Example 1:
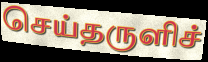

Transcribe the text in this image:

செய்தருளிச்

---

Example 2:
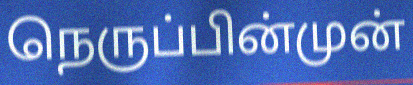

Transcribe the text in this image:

நெருப்பின்முன்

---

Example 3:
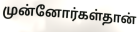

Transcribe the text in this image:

முன்னோர்கள்தான்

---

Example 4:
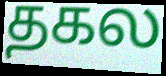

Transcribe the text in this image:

தகல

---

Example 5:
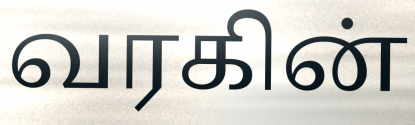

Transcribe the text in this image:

வரகின்